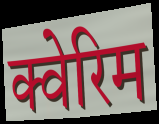
क्वेरिम